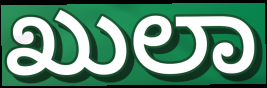
ಖುಲಾ